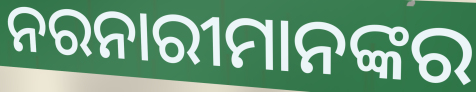
ନରନାରୀମାନଙ୍କର